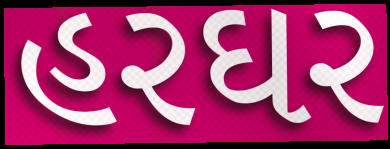
હરઘર